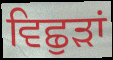
ਵਿਛੁੜਾਂ